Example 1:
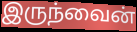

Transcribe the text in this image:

இருந்வைன்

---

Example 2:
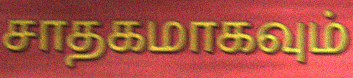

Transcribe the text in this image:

சாதகமாகவும்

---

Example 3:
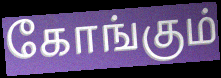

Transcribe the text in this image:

கோங்கும்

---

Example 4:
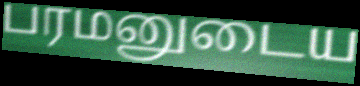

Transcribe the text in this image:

பரமனுடைய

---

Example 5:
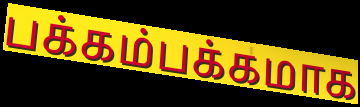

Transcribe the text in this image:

பக்கம்பக்கமாக